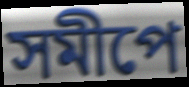
সমীপে